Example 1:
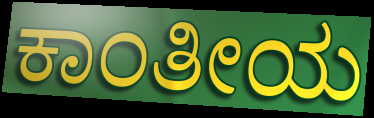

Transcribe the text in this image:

ಕಾಂತೀಯ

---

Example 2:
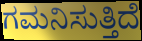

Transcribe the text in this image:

ಗಮನಿಸುತ್ತಿದೆ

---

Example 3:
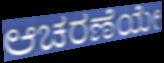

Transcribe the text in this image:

ಆಚರಣೆಯೇ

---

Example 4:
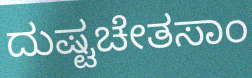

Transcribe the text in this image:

ದುಷ್ಟಚೇತಸಾಂ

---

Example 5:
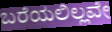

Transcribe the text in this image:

ಬರೆಯಲಿಲ್ಲವೇ